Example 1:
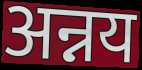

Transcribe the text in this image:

अन्नय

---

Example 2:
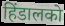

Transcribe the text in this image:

हिंडालको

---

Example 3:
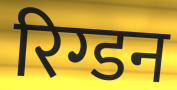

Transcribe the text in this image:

रिग्डन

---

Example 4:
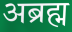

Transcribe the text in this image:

अब्रह्म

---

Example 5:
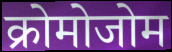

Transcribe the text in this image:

क्रोमोजोम